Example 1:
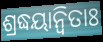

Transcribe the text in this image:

ଶ୍ରଦ୍ଧୟାନ୍ୱିତାଃ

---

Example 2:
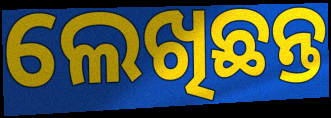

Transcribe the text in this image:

ଲେଖିଛନ୍ତ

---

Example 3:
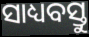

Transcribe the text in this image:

ସାଧ୍ୟବସ୍ତୁ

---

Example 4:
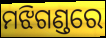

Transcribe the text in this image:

ମଝିଗଣ୍ଡରେ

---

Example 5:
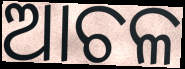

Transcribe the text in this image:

ଆଚଳ